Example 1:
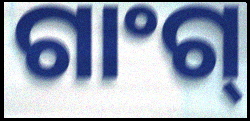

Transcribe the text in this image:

ଗାଂଗ୍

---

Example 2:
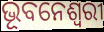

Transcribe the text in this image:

ଭୂବନେଶ୍ୱରୀ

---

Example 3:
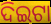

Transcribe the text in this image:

ଦିଇଟା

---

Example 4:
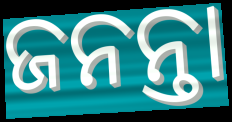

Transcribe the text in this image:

ଜନନ୍ତା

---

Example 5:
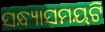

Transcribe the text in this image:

ସନ୍ଧ୍ୟାସମୟଟି